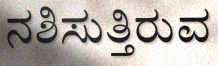
ನಶಿಸುತ್ತಿರುವ